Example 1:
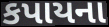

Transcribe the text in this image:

કપાયના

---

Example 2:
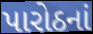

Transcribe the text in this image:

પારોઠનાં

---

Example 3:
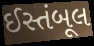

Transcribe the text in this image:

ઈસ્તંબૂલ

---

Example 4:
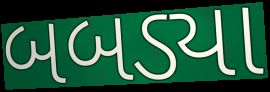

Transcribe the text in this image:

બબડ્યા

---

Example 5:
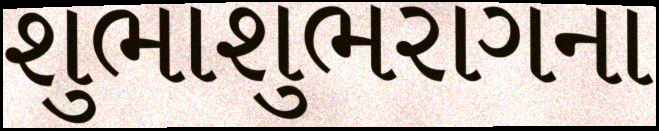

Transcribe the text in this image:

શુભાશુભરાગના